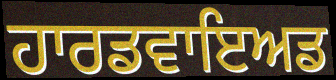
ਹਾਰਡਵਾਇਅਡ